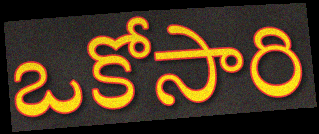
ఒకోసారి